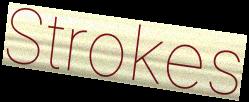
Strokes